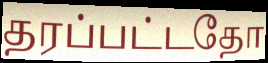
தரப்பட்டதோ